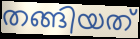
തങ്ങിയത്